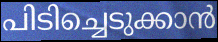
പിടിച്ചെടുക്കാൻ